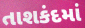
તાશકંદમાં